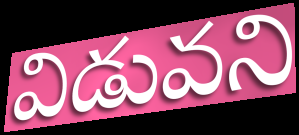
విడువని